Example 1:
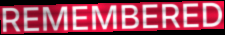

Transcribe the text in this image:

REMEMBERED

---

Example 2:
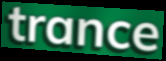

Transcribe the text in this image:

trance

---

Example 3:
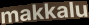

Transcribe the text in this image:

makkalu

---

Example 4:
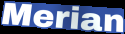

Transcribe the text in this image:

Merian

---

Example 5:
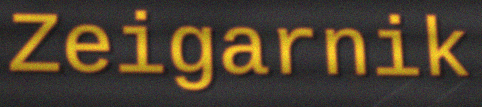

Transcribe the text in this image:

Zeigarnik